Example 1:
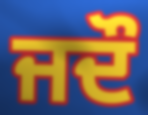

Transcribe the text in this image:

ਜਦੌ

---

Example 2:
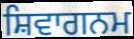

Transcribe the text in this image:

ਸ਼ਿਵਾਗਨਮ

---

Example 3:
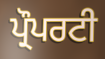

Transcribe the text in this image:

ਪ੍ਰੌਪਰਟੀ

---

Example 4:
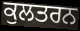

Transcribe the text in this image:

ਕੁਲਤਰਨ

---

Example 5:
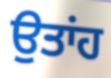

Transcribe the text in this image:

ਉਤਾਂਹ